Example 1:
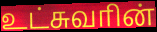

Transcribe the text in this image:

உட்சுவரின்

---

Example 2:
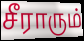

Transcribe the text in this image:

சீராரும்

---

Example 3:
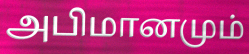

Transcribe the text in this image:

அபிமானமும்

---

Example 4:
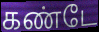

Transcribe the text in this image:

கண்டே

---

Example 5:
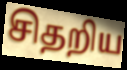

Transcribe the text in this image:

சிதறிய